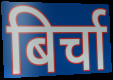
बिर्चा